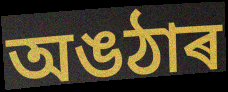
অঙঠাৰ